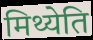
मिथ्येति